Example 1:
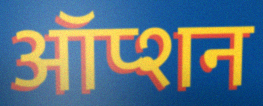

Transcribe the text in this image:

ऑप्शन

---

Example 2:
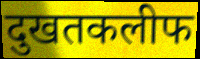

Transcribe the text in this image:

दुखतकलीफ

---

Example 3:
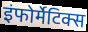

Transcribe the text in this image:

इंफोर्मेटिक्स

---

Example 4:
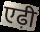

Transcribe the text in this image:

एढ़ी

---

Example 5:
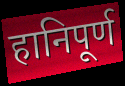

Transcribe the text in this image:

हानिपूर्ण